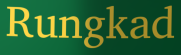
Rungkad